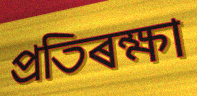
প্ৰতিৰক্ষা